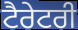
ਟੈਰੇਟਰੀ